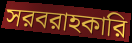
সরবরাহকারি